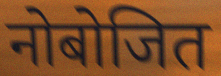
नोबोजित